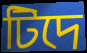
টিদে